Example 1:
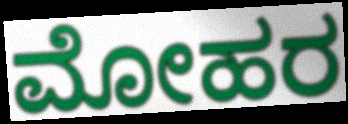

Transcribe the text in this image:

ಮೋಹರ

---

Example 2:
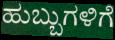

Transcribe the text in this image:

ಹುಬ್ಬುಗಳಿಗೆ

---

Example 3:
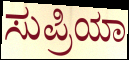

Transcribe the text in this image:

ಸುಪ್ರಿಯಾ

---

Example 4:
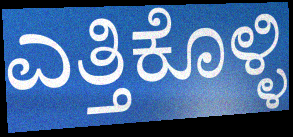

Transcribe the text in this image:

ಎತ್ತಿಕೊಳ್ಳಿ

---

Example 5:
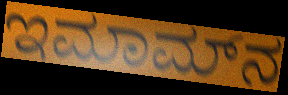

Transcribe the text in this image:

ಇಮಾಮ್‍ನ